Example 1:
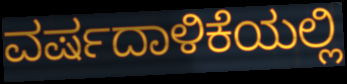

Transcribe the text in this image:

ವರ್ಷದಾಳಿಕೆಯಲ್ಲಿ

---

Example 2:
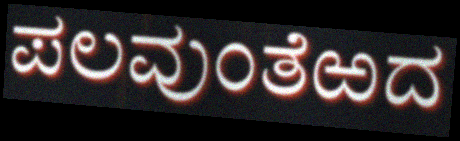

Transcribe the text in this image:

ಪಲವುಂತೆಱದ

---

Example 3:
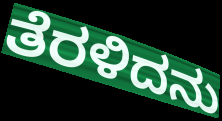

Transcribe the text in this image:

ತೆರಳಿದನು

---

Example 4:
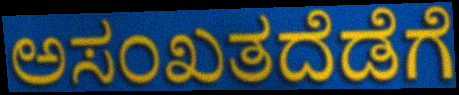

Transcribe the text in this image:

ಅಸಂಖತದೆಡೆಗೆ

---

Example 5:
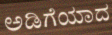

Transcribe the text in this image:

ಅಡಿಗೆಯಾದ